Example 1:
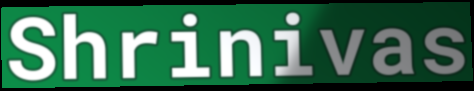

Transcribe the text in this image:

Shrinivas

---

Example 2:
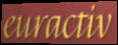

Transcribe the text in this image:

euractiv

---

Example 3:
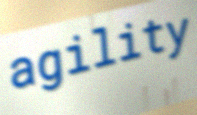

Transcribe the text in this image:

agility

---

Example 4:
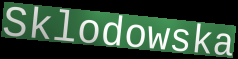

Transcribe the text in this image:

Sklodowska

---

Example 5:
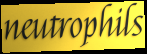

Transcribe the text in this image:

neutrophils